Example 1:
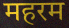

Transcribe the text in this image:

महरम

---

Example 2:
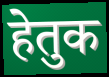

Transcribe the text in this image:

हेतुक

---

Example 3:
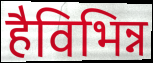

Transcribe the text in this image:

हैविभिन्न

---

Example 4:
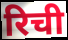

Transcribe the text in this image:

रिची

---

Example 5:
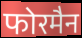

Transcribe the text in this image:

फोरमैन